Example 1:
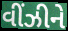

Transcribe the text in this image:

વીંઝીને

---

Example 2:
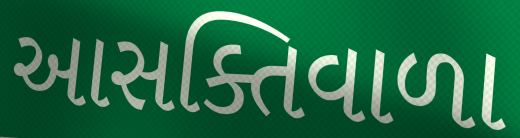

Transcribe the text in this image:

આસક્તિવાળા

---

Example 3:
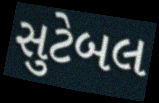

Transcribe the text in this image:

સુટેબલ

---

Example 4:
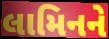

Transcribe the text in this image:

લામિનને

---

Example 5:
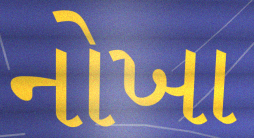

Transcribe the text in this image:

નોખા